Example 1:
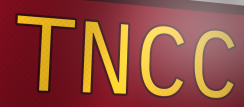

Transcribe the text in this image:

TNCC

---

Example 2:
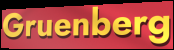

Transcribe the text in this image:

Gruenberg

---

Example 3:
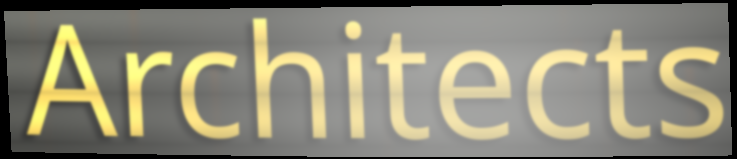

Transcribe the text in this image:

Architects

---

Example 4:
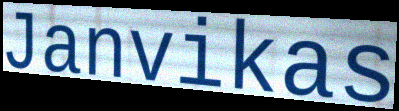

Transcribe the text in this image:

Janvikas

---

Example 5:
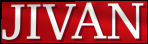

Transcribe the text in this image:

JIVAN